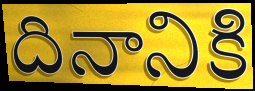
దినానికి